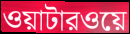
ওয়াটারওয়ে